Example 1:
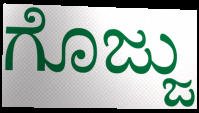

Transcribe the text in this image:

ಗೊಜ್ಜು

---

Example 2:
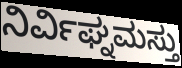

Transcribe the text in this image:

ನಿರ್ವಿಘ್ನಮಸ್ತು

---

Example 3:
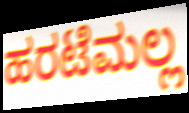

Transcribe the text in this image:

ಹರಟೆಮಲ್ಲ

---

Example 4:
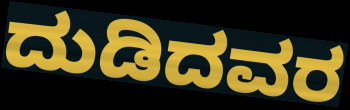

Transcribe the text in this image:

ದುಡಿದವರ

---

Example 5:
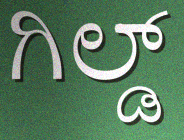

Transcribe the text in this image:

ಗಿಲ್ಡ್